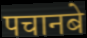
पचानबे